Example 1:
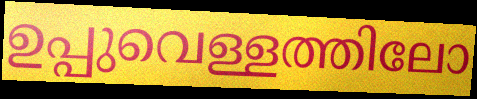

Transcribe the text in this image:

ഉപ്പുവെള്ളത്തിലോ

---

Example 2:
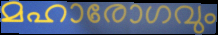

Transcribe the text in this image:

മഹാരോഗവും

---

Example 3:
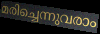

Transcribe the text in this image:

മരിച്ചെന്നുവരാം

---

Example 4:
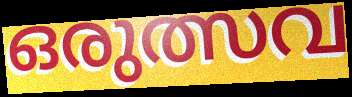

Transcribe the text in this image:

ഒരുത്സവ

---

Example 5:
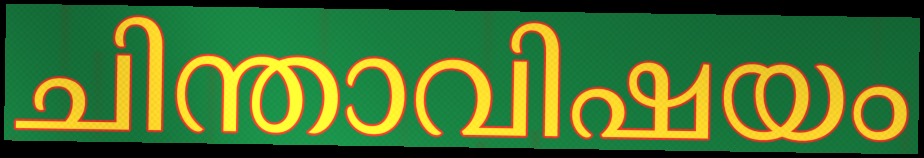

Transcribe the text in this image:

ചിന്താവിഷയം